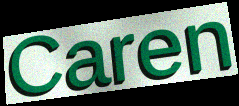
Caren